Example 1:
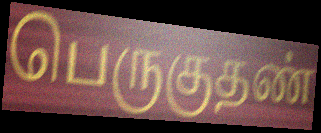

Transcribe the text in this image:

பெருகுதண்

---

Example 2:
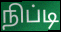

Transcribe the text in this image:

நிப்டி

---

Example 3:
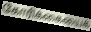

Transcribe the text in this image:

கோரிக்கையைக்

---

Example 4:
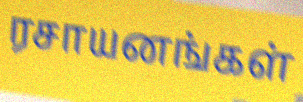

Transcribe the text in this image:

ரசாயனங்கள்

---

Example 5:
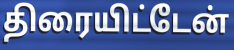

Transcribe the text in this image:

திரையிட்டேன்